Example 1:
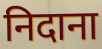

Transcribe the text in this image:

निदाना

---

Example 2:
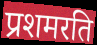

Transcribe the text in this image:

प्रशमरति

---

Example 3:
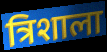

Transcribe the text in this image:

त्रिशाला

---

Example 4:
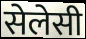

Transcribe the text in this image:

सेलेसी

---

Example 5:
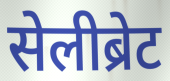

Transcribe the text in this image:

सेलीब्रेट